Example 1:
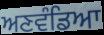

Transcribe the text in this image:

ਅਣਵੰਡਿਆ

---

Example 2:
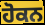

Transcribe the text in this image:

ਹੋਕਨ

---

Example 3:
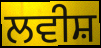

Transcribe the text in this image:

ਲਵੀਸ਼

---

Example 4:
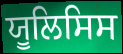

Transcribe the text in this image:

ਯੂਲਿਸਿਸ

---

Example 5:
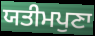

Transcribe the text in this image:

ਯਤੀਮਪੁਣਾ